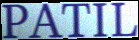
PATIL